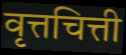
वृत्तचित्ती